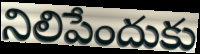
నిలిపేందుకు